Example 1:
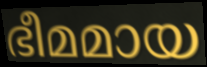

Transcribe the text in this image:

ഭീമമായ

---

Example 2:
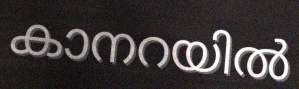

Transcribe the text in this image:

കാനറയിൽ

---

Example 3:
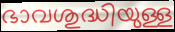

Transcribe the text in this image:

ഭാവശുദ്ധിയുള്ള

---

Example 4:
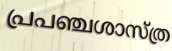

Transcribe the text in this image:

പ്രപഞ്ചശാസ്ത്ര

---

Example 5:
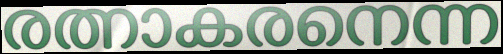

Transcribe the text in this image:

രത്നാകരനെന്ന